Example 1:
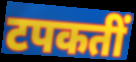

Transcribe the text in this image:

टपकतीं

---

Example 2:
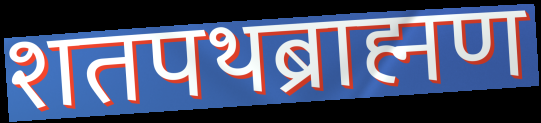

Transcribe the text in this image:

शतपथब्राह्मण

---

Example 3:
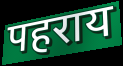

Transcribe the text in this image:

पहराय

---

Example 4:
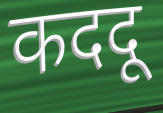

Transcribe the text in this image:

कददू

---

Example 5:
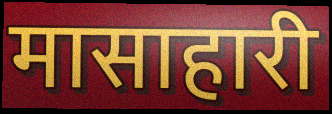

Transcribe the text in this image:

मासाहारी